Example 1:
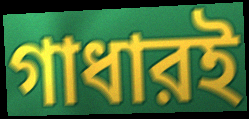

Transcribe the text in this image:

গাধারই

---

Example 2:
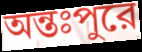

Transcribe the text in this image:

অন্তঃপুরে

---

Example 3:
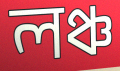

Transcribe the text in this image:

লঞ্চ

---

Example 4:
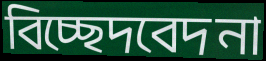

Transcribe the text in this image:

বিচ্ছেদবেদনা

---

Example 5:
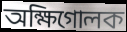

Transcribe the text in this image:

অক্ষিগোলক